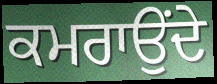
ਕਮਰਾਉਂਦੇ